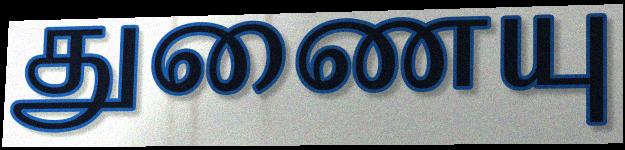
துணையு